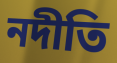
নদীতি